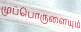
முப்பொருளையும்